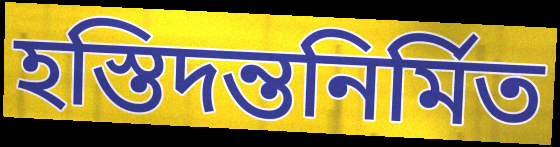
হস্তিদন্তনির্মিত